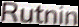
Rutnin